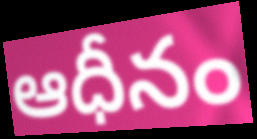
ఆధీనం